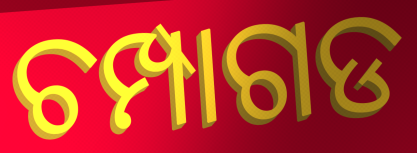
ଚମ୍ପାଗଡ